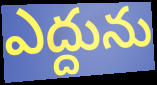
ఎద్దును